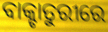
ବାକ୍ଚାତୁରୀରେ